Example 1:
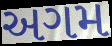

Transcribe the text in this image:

અગમ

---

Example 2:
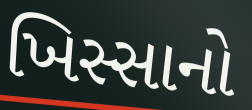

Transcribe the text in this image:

ખિસ્સાનો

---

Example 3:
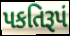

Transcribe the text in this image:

પકતિરૂપં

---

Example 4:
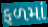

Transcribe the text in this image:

ફળમાં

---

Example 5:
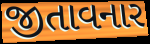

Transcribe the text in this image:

જીતાવનાર